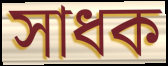
সাধক